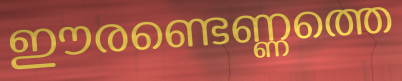
ഈരണ്ടെണ്ണത്തെ